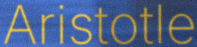
Aristotle